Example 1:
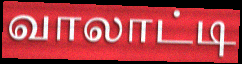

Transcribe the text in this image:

வாலாட்டி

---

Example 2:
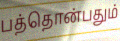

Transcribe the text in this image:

பத்தொன்பதும்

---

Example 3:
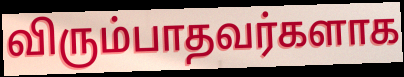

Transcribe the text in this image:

விரும்பாதவர்களாக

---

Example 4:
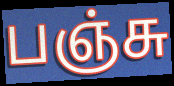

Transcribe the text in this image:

பஞ்சு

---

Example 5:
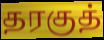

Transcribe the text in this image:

தரகுத்